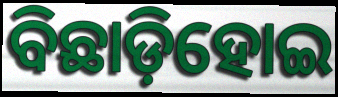
ବିଛାଡ଼ିହୋଇ